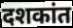
दशकांत